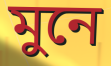
মুনে